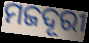
ମଜଦୂରୀ